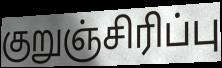
குறுஞ்சிரிப்பு